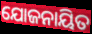
ଯୋଜନାୟିତ